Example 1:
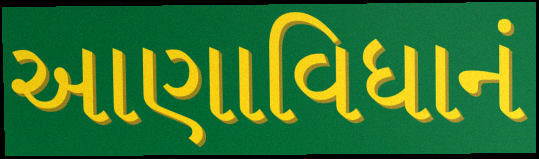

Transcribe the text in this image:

આણાવિધાનં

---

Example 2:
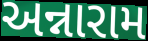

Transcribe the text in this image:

અન્નારામ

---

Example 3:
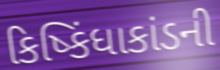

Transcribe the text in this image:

કિષ્કિંધાકાંડની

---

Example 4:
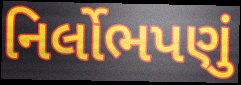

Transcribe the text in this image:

નિર્લોભપણું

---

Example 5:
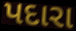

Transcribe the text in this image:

પદારા